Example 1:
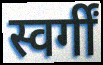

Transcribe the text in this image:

स्वर्गीं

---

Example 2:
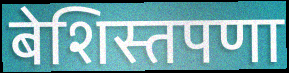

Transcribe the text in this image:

बेशिस्तपणा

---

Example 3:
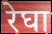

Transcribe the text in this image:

रेघा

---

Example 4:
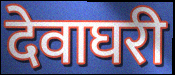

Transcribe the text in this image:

देवाघरी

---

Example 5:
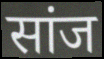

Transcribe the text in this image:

सांज